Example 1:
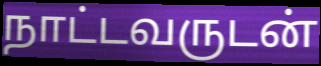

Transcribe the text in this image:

நாட்டவருடன்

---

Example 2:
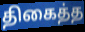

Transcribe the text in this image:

திகைத்த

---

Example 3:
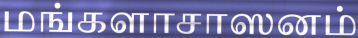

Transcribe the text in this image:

மங்களாசாஸனம்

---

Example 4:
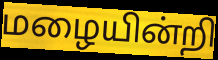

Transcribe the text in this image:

மழையின்றி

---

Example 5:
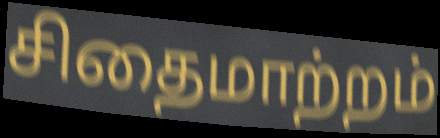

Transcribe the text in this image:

சிதைமாற்றம்